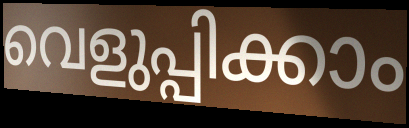
വെളുപ്പിക്കാം